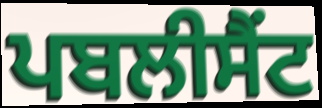
ਪਬਲੀਸੈਂਟ